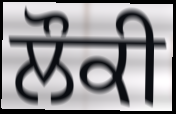
ਲੌਕੀ